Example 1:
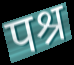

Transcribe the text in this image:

पश्र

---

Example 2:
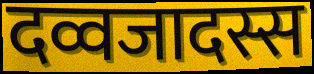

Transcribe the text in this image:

दव्वजादस्स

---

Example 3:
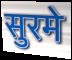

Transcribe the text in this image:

सुरमे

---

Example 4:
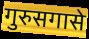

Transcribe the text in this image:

गुरुसगासे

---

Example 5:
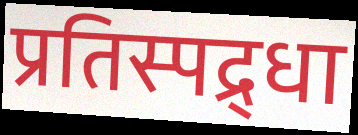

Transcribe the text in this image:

प्रतिस्पद्र्धा